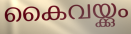
കൈവയ്ക്കും